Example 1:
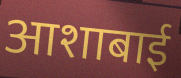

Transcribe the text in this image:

आशाबाई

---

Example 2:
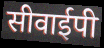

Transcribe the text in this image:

सीवाईपी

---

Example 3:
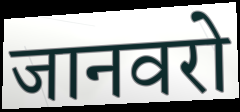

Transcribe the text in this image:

जानवरो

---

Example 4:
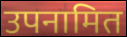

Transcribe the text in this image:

उपनामित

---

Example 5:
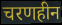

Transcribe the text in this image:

चरणहीन